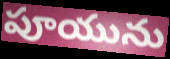
పూయును